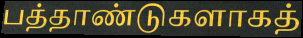
பத்தாண்டுகளாகத்